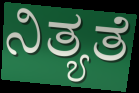
ನಿತ್ಯತೆ